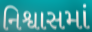
નિશ્વાસમાં